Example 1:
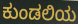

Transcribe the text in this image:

ಕುಂಡಲಿಯ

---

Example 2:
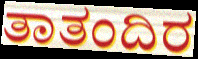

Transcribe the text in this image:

ತಾತಂದಿರ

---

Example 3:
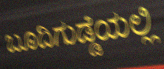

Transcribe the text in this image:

ಬೂದಿಗುಡ್ಡೆಯಲ್ಲಿ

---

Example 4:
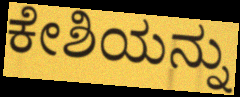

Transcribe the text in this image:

ಕೇಶಿಯನ್ನು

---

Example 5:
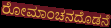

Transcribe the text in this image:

ರೋಮಾಂಚನದೊಡನೆ